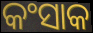
କଂସାକ